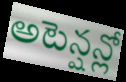
అటెన్షన్లో